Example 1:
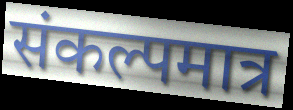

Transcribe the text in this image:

संकल्पमात्र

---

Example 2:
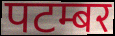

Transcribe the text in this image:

पटम्बर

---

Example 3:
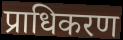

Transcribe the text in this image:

प्राधिकरण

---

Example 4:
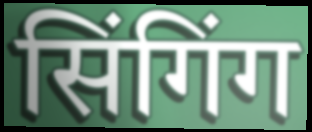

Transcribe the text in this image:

सिंगिंग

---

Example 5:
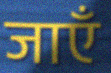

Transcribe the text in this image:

जाएँ